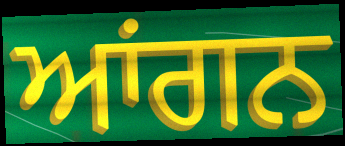
ਆਂਗਨ